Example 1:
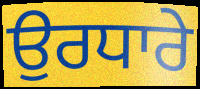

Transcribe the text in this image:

ਉਰਧਾਰੇ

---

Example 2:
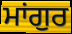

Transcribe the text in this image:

ਮਾਂਗੁਰ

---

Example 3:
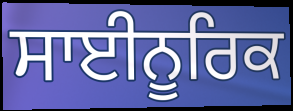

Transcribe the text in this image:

ਸਾਈਨੂਰਿਕ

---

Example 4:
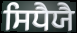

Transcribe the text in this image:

ਸਿਧੈਯੈ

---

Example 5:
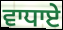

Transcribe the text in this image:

ਵਾਧਾਏ